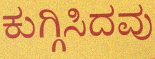
ಕುಗ್ಗಿಸಿದವು